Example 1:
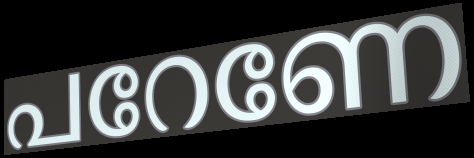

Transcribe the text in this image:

പറേണേ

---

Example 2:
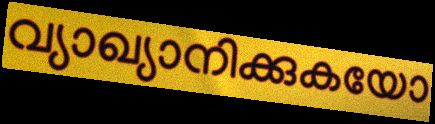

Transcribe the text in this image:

വ്യാഖ്യാനിക്കുകയോ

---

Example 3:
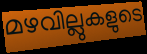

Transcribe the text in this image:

മഴവില്ലുകളുടെ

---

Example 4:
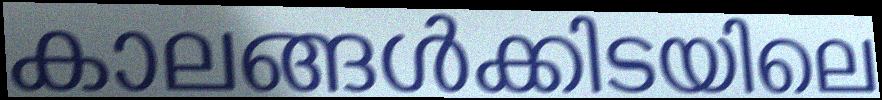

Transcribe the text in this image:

കാലങ്ങൾക്കിടയിലെ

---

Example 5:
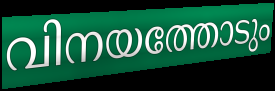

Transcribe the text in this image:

വിനയത്തോടും